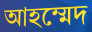
আহম্মেদ